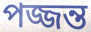
পজ্জন্ত